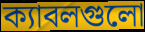
ক্যাবলগুলো